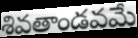
శివతాండవమే